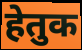
हेतुक